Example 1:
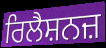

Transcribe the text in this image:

ਰਿਲੈਸ਼ਨਜ਼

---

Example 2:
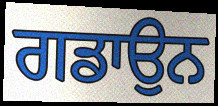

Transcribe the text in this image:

ਗਡਾਉਨ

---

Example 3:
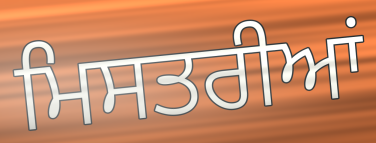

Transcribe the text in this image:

ਮਿਸਤਰੀਆਂ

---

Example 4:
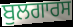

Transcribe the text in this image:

ਬੁਲਗਾਰਸ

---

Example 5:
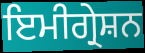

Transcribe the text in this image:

ਇਮੀਗ੍ਰੇਸ਼ਨ